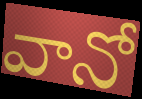
వానో